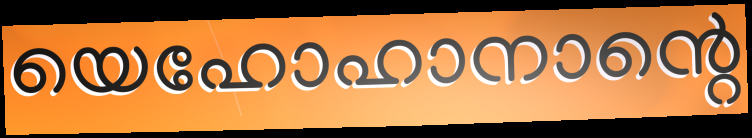
യെഹോഹാനാന്റെ